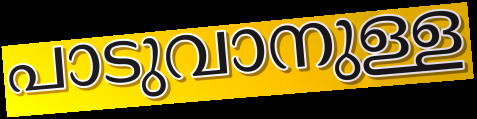
പാടുവാനുള്ള